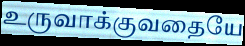
உருவாக்குவதையே